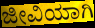
ಜೀವಿಯಾಗಿ